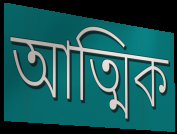
আত্মিক